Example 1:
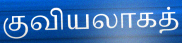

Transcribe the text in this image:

குவியலாகத்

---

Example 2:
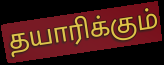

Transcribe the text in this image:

தயாரிக்கும்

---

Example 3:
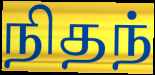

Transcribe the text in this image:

நிதந்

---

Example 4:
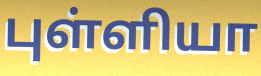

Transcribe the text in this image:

புள்ளியா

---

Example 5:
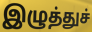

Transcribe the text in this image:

இழுத்துச்